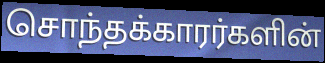
சொந்தக்காரர்களின்